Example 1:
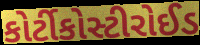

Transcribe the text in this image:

કોર્ટીકોસ્ટીરોઈડ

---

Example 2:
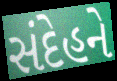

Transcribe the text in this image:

સંદેહને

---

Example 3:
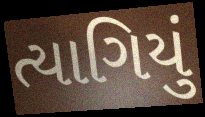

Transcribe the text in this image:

ત્યાગિયું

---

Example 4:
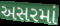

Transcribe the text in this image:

અસરમાં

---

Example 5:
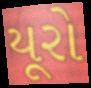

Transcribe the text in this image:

યૂરો